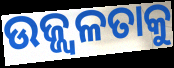
ଉଜ୍ଜ୍ୱଳତାକୁ